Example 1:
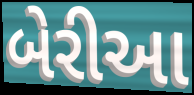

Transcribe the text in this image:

બેરીઆ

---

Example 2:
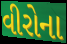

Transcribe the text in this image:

વીરોના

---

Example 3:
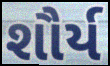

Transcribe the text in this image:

શૌર્ય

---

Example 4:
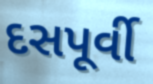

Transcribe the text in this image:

દસપૂર્વી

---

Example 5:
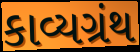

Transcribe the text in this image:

કાવ્યગ્રંથ